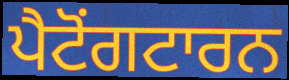
ਪੈਟੋਂਗਟਾਰਨ